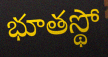
భూతస్థో